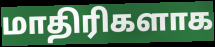
மாதிரிகளாக